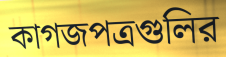
কাগজপত্রগুলির